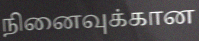
நினைவுக்கான